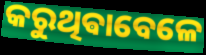
କରୁଥିଵାବେଳେ